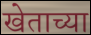
खेताच्या